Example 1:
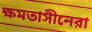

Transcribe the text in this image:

ক্ষমতাসীনেরা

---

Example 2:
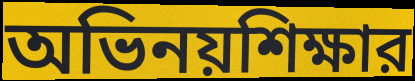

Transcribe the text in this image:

অভিনয়শিক্ষার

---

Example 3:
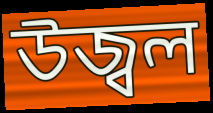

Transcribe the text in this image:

উজ্বল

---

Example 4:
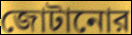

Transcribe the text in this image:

জোটানোর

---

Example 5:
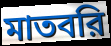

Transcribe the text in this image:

মাতবরি